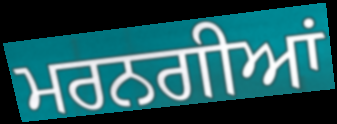
ਮਰਨਗੀਆਂ